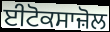
ਈਟੋਕਸਾਜ਼ੋਲ